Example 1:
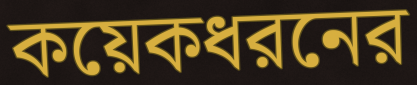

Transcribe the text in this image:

কয়েকধরনের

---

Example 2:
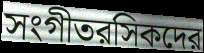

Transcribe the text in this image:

সংগীতরসিকদের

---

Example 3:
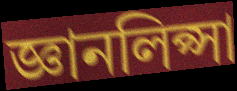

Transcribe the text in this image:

জ্ঞানলিপ্সা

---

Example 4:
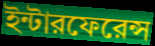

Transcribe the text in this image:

ইন্টারফেরেন্স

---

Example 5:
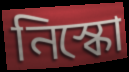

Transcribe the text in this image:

নিস্কো